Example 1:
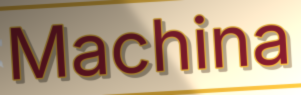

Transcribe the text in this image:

Machina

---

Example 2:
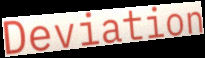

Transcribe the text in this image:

Deviation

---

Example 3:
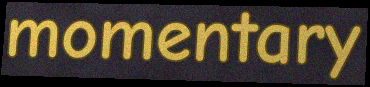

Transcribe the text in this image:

momentary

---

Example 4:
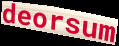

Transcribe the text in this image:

deorsum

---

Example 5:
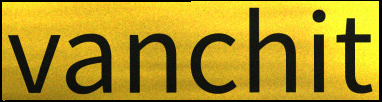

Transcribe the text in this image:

vanchit